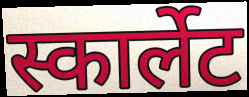
स्कार्लेट